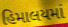
હિમાલયમાં